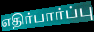
எதிர்பார்ப்பு